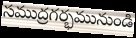
సముద్రగర్భమునుండి